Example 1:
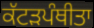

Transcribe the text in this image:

ਕੱਟੜਪੰਥੀਤਾ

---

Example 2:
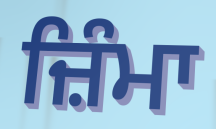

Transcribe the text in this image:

ਜ਼ਿੰਮਾ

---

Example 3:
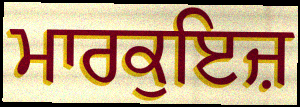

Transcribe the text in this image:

ਮਾਰਕੁਇਜ਼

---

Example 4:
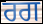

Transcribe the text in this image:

ਰਗ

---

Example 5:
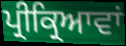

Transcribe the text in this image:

ਪ੍ਰੀਕ੍ਰਿਆਵਾਂ